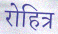
रोहित्र